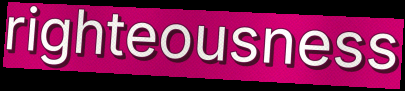
righteousness